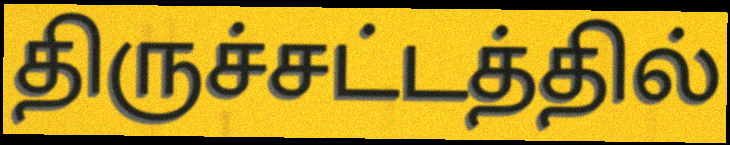
திருச்சட்டத்தில்